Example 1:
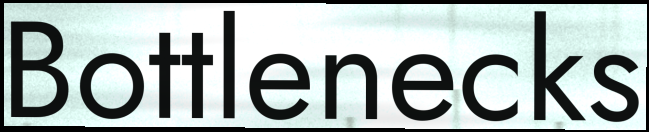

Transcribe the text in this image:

Bottlenecks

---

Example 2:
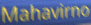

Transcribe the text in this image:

Mahavirno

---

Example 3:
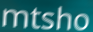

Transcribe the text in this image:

mtsho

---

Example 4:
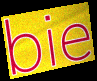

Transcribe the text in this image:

bie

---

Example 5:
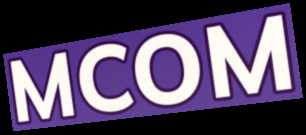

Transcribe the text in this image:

MCOM